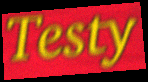
Testy